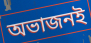
অভাজনই